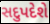
સદુપદેશે